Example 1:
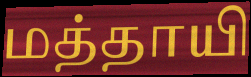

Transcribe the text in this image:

மத்தாயி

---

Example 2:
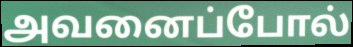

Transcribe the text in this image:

அவனைப்போல்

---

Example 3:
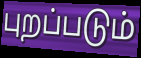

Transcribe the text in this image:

புறப்படும்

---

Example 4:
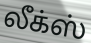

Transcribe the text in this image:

லீக்ஸ்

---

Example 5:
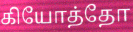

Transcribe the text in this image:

கியோத்தோ